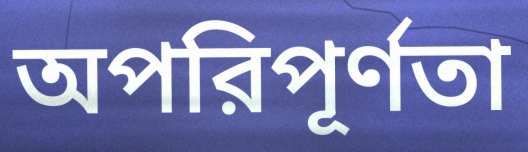
অপরিপূর্ণতা